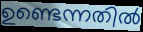
ഉണ്ടെന്നതിൽ